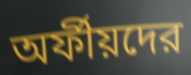
অর্ফীয়দের